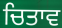
ਚਿਤਾਵ